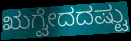
ಋಗ್ವೇದದಷ್ಟು